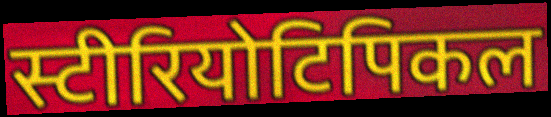
स्टीरियोटिपिकल